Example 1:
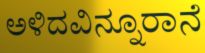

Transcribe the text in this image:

ಅಳಿದವಿನ್ನೂರಾನೆ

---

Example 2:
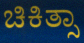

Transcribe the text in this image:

ಚಿಕಿತ್ಸಾ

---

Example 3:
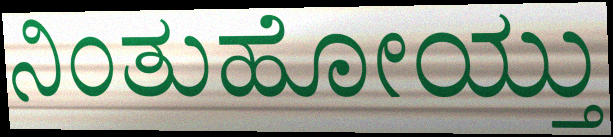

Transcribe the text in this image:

ನಿಂತುಹೋಯ್ತು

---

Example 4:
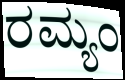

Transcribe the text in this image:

ರಮ್ಯಂ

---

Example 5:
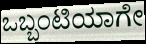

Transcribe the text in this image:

ಒಬ್ಬಂಟಿಯಾಗೇ